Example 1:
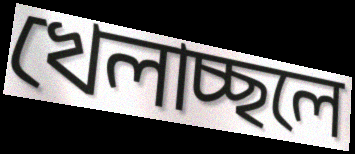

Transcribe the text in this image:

খেলাচ্ছলে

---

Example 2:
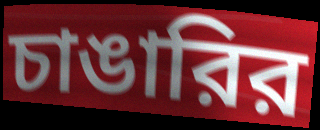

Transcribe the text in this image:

চাঙারির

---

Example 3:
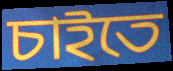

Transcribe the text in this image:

চাইতে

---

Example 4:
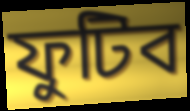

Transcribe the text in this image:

ফুটিব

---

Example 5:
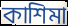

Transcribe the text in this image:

কাশিমা